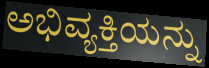
ಅಭಿವ್ಯಕ್ತಿಯನ್ನು